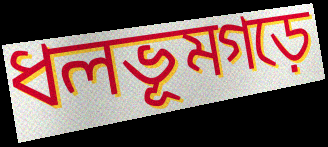
ধলভূমগড়ে